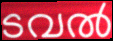
ടവൽ